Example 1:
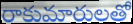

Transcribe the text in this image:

రాకుమారులతో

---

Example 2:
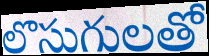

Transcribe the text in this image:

లొసుగులతో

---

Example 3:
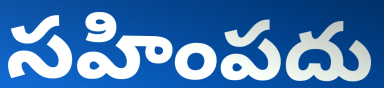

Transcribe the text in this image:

సహింపదు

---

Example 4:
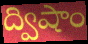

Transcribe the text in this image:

ద్విషాం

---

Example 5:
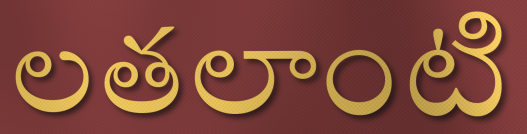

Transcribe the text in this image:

లతలాంటి